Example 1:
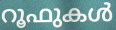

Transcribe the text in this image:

റൂഫുകൾ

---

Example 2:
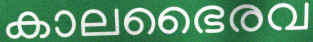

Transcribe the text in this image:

കാലഭൈരവ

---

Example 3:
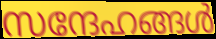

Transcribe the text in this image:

സന്ദേഹങ്ങൾ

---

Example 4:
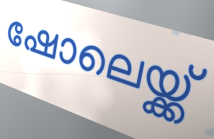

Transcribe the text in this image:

ഷോലെയ്ക്ക്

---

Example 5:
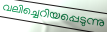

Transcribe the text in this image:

വലിച്ചെറിയപ്പെടുന്നു